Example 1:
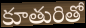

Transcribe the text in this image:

కూతురితో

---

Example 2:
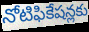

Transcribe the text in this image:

నోటిఫికేషన్లకు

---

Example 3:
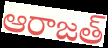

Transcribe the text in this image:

ఆరాజత్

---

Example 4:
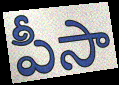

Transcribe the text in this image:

పీసా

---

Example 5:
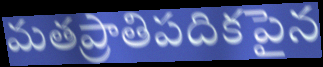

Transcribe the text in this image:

మతప్రాతిపదికపైన